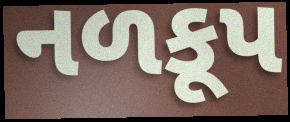
નળકૂપ